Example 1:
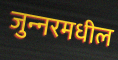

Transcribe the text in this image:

जुन्नरमधील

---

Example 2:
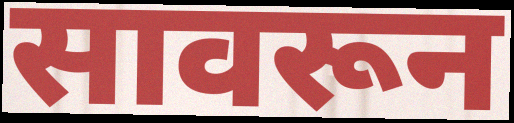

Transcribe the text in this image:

सावरून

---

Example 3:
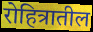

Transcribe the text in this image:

रोहित्रातील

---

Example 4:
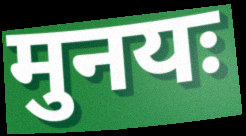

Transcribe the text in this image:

मुनयः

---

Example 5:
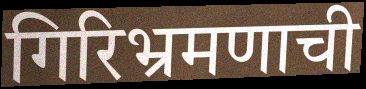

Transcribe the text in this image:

गिरिभ्रमणाची